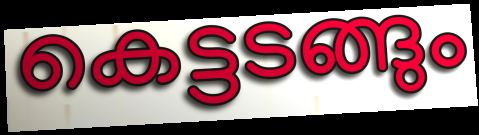
കെട്ടടങ്ങും